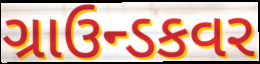
ગ્રાઉન્ડકવર